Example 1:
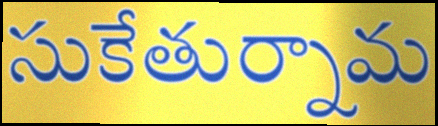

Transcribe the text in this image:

సుకేతుర్నామ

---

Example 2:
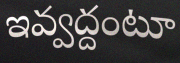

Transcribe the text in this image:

ఇవ్వద్దంటూ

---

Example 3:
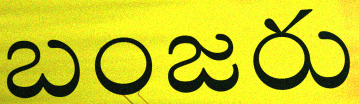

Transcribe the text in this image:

బంజరు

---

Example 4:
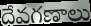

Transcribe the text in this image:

దేవగణాలు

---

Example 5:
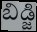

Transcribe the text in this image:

బిడ్జి